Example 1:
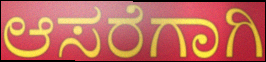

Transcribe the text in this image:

ಆಸರೆಗಾಗಿ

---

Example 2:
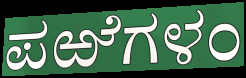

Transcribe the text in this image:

ಪಱೆಗಳಂ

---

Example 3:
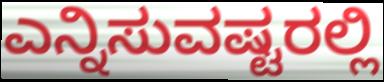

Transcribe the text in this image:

ಎನ್ನಿಸುವಷ್ಟರಲ್ಲಿ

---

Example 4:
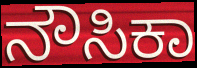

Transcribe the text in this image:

ನೌಸಿಕಾ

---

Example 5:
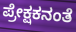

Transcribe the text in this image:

ಪ್ರೇಕ್ಷಕನಂತೆ